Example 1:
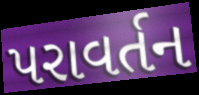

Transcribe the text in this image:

પરાવર્તન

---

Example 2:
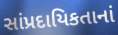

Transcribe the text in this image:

સાંપ્રદાયિકતાનાં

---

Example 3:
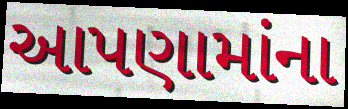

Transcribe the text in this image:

આપણામાંના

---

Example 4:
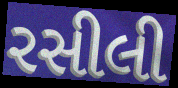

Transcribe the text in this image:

રસીલી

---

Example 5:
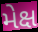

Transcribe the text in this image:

મેક્ષ